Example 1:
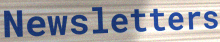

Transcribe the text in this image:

Newsletters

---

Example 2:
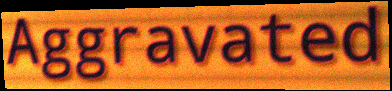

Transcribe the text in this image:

Aggravated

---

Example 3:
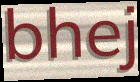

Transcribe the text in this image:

bhej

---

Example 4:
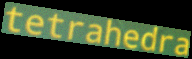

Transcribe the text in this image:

tetrahedra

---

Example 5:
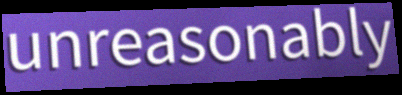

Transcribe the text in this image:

unreasonably